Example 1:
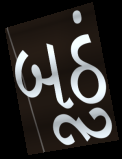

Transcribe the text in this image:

બૂઠું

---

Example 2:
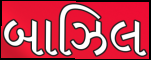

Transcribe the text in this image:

બાઝિલ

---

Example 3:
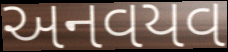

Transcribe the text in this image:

અનવયવ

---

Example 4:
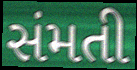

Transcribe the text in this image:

સંમતી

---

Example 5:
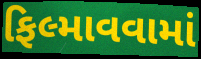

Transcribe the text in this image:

ફિલ્માવવામાં